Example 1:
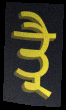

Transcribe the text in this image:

ਤ੍ਰੈ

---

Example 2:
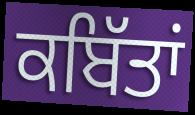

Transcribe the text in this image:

ਕਬਿੱਤਾਂ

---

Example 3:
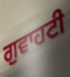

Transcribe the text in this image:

ਗੁਵਾਹਟੀ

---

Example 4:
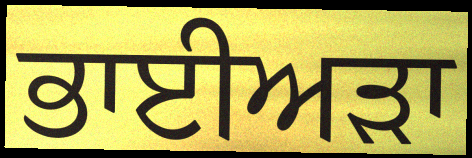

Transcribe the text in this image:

ਭਾਈਅੜਾ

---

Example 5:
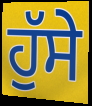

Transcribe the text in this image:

ਹੁੱਸੇ